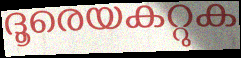
ദൂരെയകറ്റുക